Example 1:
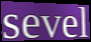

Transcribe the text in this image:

sevel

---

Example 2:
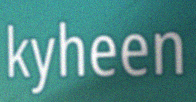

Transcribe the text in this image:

kyheen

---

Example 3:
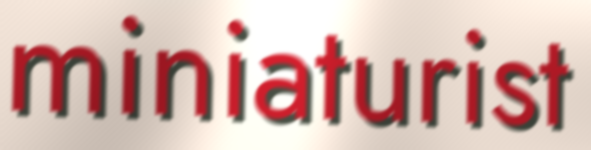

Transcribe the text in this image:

miniaturist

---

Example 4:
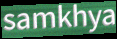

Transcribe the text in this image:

samkhya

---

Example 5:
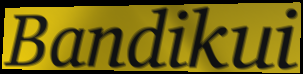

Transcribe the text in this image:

Bandikui